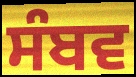
ਸੰਬਵ